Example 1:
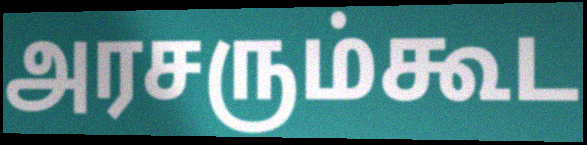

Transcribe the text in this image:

அரசரும்கூட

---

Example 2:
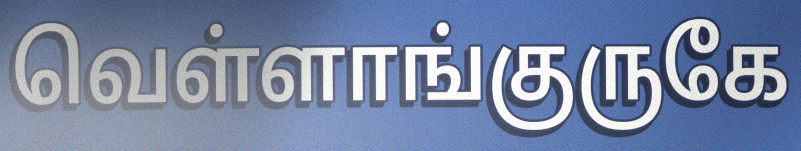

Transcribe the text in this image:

வெள்ளாங்குருகே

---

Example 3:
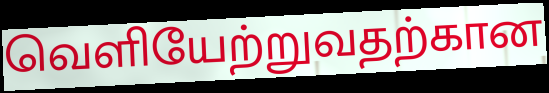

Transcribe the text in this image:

வெளியேற்றுவதற்கான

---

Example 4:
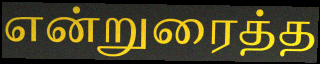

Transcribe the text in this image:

என்றுரைத்த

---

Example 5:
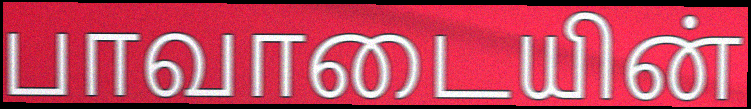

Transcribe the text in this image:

பாவாடையின்